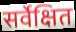
सर्वेक्षित